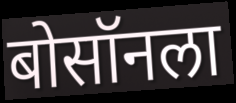
बोसॉनला